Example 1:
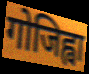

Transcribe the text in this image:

गोजिह्वा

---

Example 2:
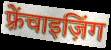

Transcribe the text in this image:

फ़्रेंचाइज़िंग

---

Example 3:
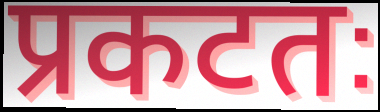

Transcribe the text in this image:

प्रकटतः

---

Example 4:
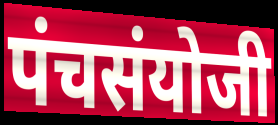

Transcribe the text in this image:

पंचसंयोजी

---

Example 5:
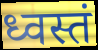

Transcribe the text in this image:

ध्वस्तं